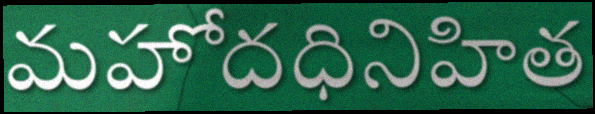
మహోదధినిహిత